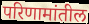
परिणामांतील